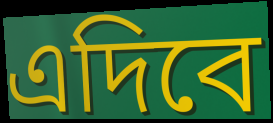
এদিবে